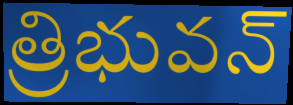
త్రిభువన్